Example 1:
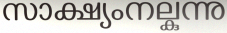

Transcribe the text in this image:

സാക്ഷ്യംനല്കുന്നു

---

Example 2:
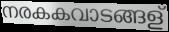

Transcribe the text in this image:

നരകകവാടങ്ങള്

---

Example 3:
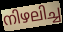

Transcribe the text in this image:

നിഴലിച്ച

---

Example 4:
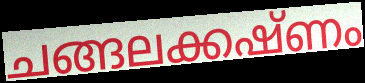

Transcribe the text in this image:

ചങ്ങലക്കഷ്ണം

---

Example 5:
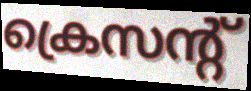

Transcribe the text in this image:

ക്രെസന്റ്